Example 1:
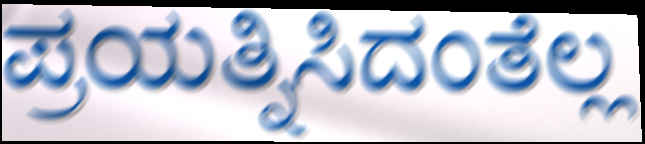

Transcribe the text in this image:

ಪ್ರಯತ್ನಿಸಿದಂತೆಲ್ಲ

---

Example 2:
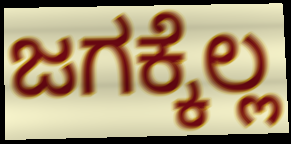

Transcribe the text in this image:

ಜಗಕ್ಕೆಲ್ಲ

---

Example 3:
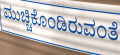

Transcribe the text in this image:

ಮುಚ್ಚಿಕೊಂಡಿರುವಂತೆ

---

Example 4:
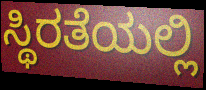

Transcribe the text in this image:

ಸ್ಥಿರತೆಯಲ್ಲಿ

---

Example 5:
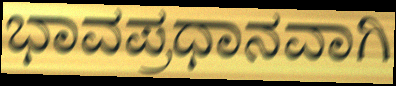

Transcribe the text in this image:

ಭಾವಪ್ರಧಾನವಾಗಿ